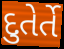
દુતેર્તે